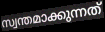
സ്വന്തമാക്കുന്നത്